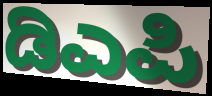
ಡಿಎಪಿ